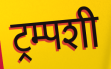
ट्रम्पशी